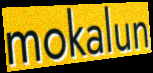
mokalun